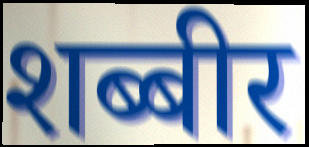
शब्बीर